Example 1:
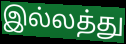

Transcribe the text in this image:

இல்லத்து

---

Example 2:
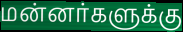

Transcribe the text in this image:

மன்னர்களுக்கு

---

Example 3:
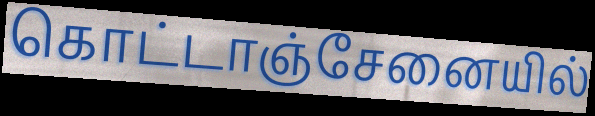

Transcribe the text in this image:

கொட்டாஞ்சேனையில்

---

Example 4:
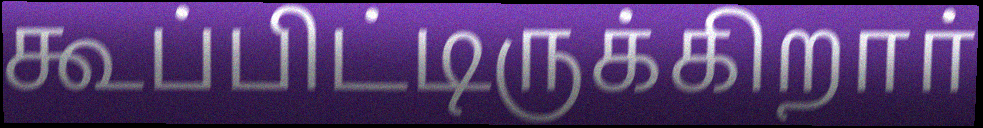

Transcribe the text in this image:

கூப்பிட்டிருக்கிறார்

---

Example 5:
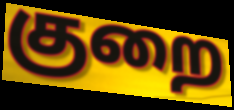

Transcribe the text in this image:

குறை